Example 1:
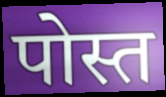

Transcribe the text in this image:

पोस्त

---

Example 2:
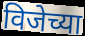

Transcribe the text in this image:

विजेच्या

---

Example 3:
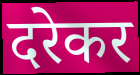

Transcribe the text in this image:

दरेकर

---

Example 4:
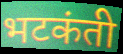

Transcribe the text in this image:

भटकंती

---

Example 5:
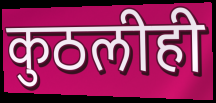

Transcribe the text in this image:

कुठलीही